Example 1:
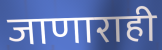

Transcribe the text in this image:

जाणाराही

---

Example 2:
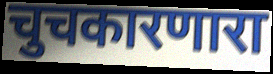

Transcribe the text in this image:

चुचकारणारा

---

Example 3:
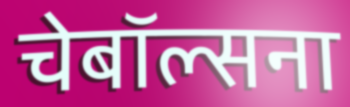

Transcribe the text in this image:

चेबॉल्सना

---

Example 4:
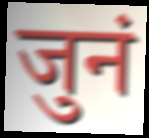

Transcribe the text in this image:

जुनं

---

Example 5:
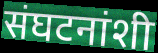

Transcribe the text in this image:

संघटनांशी